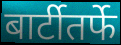
बार्टीतर्फे